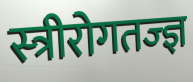
स्‍त्रीरोगतज्‍ज्ञ